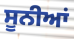
ਸੂਨੀਆਂ